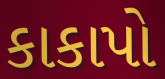
કાકાપો